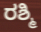
ರಶ್ಮಿ